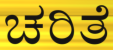
ಚರಿತೆ